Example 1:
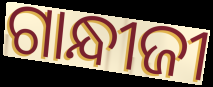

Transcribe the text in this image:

ଗାନ୍ଧୀଜୀ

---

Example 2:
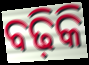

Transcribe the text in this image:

ବଢ଼ିକି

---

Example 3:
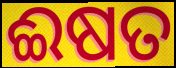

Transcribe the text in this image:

ଈଷତ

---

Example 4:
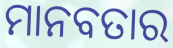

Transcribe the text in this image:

ମାନବତାର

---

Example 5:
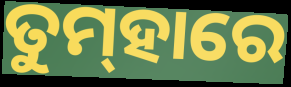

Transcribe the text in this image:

ତୁମ୍‌ହାରେ